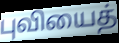
புவியைத்